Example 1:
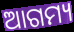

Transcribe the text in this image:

ଆଗମ୍ୟ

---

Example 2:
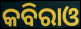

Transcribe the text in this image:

କବିରାଓ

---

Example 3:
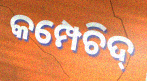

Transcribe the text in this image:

କମ୍ପେଚିଦ୍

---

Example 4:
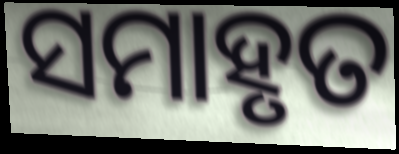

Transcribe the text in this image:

ସମାହୃତ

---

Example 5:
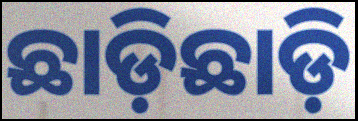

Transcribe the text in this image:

ଛାଡ଼ିଛାଡ଼ି